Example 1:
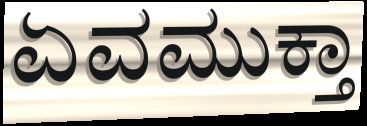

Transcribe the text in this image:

ಏವಮುಕ್ತಾ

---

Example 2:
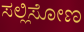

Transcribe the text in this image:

ಸಲ್ಲಿಸೋಣ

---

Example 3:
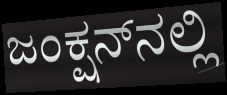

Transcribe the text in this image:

ಜಂಕ್ಷನ್‌ನಲ್ಲಿ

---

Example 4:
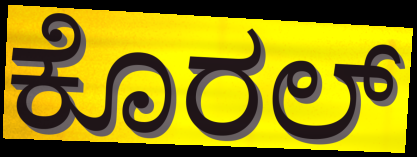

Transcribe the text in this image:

ಕೊರಲ್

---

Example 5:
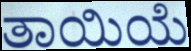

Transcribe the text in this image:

ತಾಯಿಯೆ